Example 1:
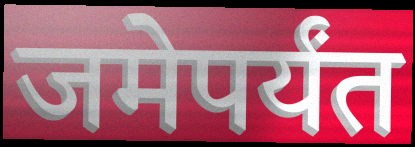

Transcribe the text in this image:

जमेपर्यंत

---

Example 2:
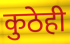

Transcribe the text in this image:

कुठेही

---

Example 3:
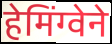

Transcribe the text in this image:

हेमिंग्वेने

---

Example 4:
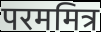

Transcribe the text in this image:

परममित्र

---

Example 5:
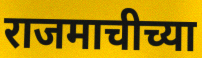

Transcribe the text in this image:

राजमाचीच्या